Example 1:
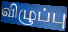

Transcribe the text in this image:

விழுப்பு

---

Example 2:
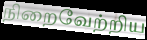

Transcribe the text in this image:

நிறைவேற்றிய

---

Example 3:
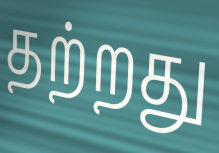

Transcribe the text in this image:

தற்றது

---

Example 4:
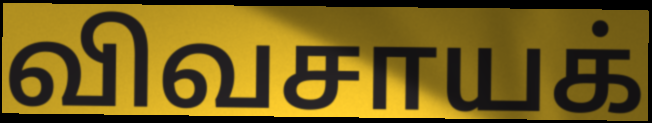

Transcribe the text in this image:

விவசாயக்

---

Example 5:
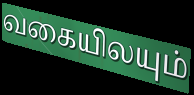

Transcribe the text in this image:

வகையிலயும்